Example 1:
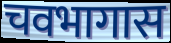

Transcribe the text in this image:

चवभागास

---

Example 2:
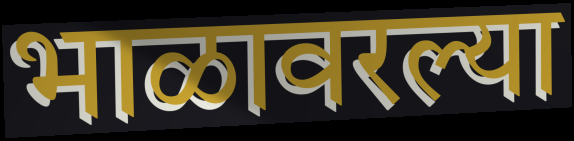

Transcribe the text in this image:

भाळावरल्या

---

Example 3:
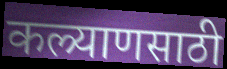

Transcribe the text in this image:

कल्याणसाठी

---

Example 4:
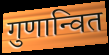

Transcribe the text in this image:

गुणान्वित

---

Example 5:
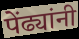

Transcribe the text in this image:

पेंढ्यांनी